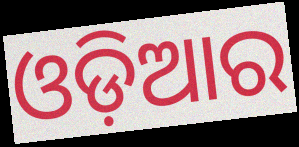
ଓଡ଼ିଆର